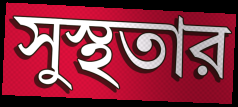
সুস্থতার